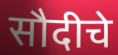
सौदीचे